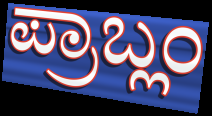
ಪ್ರಾಬ್ಲಂ